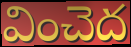
వించెద